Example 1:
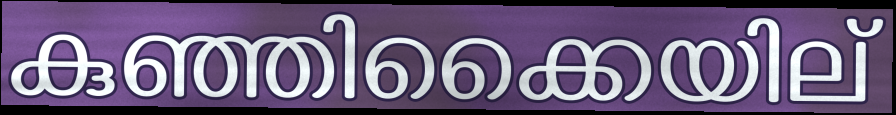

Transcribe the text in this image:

കുഞ്ഞിക്കൈയില്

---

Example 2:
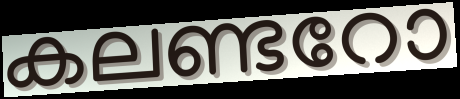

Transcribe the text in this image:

കലണ്ടറോ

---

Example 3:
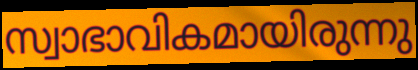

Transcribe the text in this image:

സ്വാഭാവികമായിരുന്നു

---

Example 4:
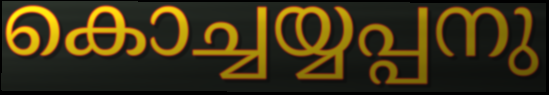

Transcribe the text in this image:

കൊച്ചയ്യപ്പനു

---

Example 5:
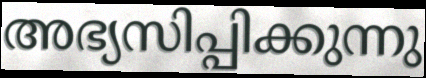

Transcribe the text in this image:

അഭ്യസിപ്പിക്കുന്നു